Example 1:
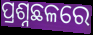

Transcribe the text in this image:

ପ୍ରଶ୍ନଛଳରେ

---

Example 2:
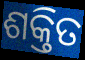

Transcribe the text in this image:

ଶକ୍ତିତ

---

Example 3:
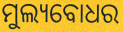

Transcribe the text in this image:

ମୁଲ୍ୟବୋଧର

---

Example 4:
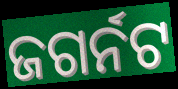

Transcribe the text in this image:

ଜଗର୍ନଟ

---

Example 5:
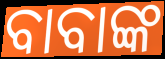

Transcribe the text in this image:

ବାବାଙ୍କ